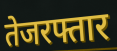
तेजरफ्तार